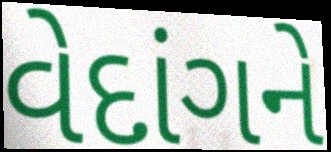
વેદાંગને